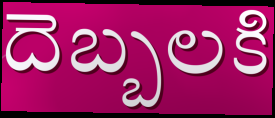
దెబ్బలకి